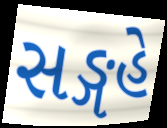
સઙ્ગહે